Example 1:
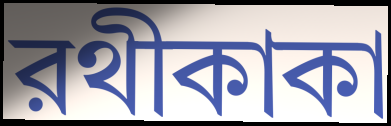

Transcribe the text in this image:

রথীকাকা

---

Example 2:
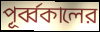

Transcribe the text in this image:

পূর্ব্বকালের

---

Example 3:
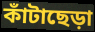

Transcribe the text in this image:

কাঁটাছেড়া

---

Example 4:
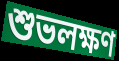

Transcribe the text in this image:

শুভলক্ষণ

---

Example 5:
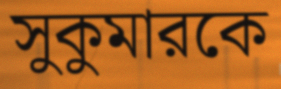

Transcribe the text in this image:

সুকুমারকে